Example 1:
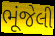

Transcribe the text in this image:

ભૂંજેલી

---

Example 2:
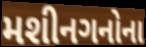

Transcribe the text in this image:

મશીનગનોના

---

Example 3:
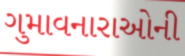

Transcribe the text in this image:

ગુમાવનારાઓની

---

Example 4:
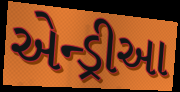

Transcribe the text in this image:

એન્ડ્રીઆ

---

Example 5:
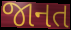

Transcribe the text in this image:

જાનત